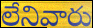
లేనివారు